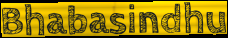
Bhabasindhu